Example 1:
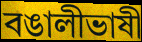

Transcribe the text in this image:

বঙালীভাষী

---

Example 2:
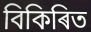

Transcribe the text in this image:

বিকিৰিত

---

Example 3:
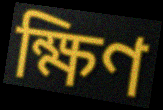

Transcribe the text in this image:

ক্ষিণ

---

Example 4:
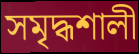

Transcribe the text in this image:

সমৃদ্ধশালী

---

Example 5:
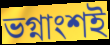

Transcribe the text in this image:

ভগ্নাংশই